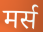
मर्स